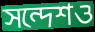
সন্দেশও